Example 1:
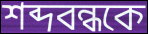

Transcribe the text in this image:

শব্দবন্ধকে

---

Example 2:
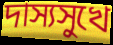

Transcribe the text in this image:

দাস্যসুখে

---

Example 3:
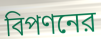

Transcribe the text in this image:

বিপণনের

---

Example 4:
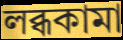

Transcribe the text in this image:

লব্ধকামা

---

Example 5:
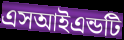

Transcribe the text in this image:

এসআইএন্ডটি